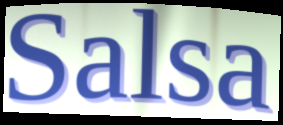
Salsa